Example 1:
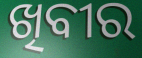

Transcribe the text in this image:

ଖିବୀର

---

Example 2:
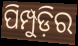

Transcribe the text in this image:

ପିମ୍ପୁଡ଼ିର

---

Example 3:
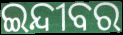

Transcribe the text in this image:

ଇନ୍ଦୀବର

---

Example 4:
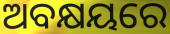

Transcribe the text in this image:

ଅବକ୍ଷୟରେ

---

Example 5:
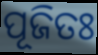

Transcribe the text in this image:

ପୂଜିତଃ